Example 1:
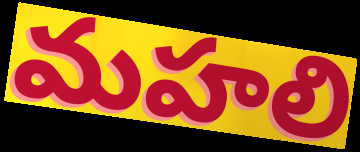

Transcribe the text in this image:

మహలి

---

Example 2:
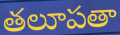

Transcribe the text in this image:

తలూపతా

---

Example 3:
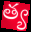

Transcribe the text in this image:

త్య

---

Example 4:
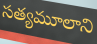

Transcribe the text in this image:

సత్యమూలాని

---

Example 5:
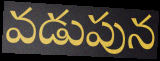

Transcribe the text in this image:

వడుపున